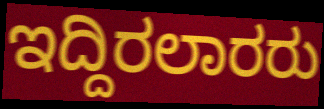
ಇದ್ದಿರಲಾರರು